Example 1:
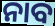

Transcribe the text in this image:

ନାବ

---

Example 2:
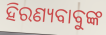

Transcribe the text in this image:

ହିରଣ୍ୟବାବୁଙ୍କ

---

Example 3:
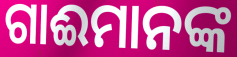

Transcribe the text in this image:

ଗାଈମାନଙ୍କ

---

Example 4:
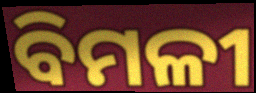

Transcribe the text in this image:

ବିମଳୀ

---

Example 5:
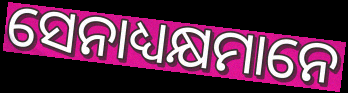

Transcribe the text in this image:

ସେନାଧ୍ୟକ୍ଷମାନେ